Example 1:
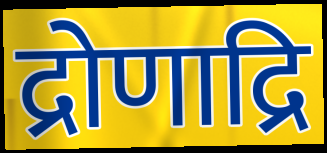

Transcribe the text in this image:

द्रोणाद्रि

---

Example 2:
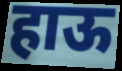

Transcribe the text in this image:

हाऊ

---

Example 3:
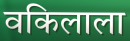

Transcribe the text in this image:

वकिलाला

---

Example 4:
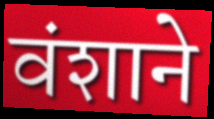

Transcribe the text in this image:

वंशाने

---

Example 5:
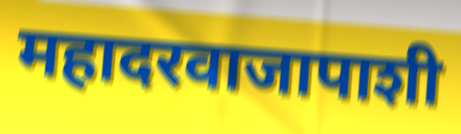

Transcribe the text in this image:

महादरवाजापाशी